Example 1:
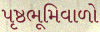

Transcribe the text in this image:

પૃષ્ઠભૂમિવાળો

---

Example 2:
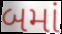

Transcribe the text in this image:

બમાં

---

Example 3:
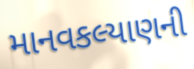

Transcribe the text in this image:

માનવકલ્યાણની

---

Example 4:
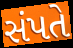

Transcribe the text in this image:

સંપતે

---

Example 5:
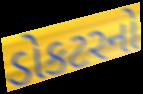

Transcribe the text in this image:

ડોકટરનો